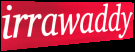
irrawaddy